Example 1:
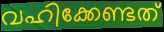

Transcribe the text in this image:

വഹിക്കേണ്ടത്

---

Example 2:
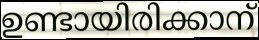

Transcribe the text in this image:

ഉണ്ടായിരിക്കാന്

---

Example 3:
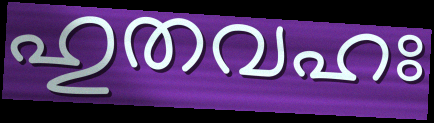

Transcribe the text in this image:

ഹുതവഹഃ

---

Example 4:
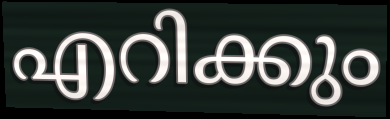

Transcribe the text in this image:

എറിക്കും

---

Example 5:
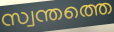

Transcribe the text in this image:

സ്വന്തത്തെ